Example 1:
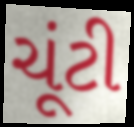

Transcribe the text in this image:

ચૂંટી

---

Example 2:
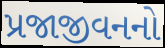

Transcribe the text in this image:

પ્રજાજીવનનો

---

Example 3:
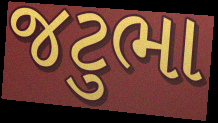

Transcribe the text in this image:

જટુભા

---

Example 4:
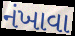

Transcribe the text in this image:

નંખાવા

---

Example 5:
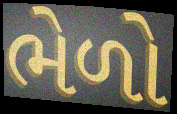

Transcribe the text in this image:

ભેળો